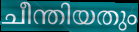
ചീന്തിയതും